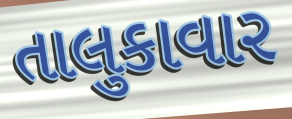
તાલુકાવાર